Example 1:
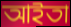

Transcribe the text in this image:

আইতা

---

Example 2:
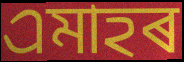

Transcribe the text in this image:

এমাহৰ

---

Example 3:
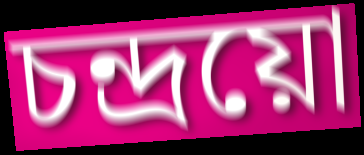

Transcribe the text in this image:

চন্দ্ৰয়ো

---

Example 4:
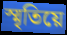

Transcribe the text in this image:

স্মৃতিয়ে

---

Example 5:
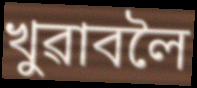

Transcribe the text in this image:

খুৱাবলৈ